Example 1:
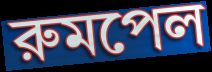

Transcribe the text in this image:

রুমপেল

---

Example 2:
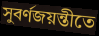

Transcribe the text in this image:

সুবর্ণজয়ন্তীতে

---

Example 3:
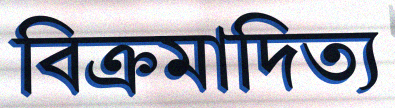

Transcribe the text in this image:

বিক্রমাদিত্য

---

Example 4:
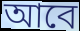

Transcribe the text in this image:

আবে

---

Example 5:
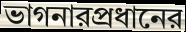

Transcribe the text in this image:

ভাগনারপ্রধানের